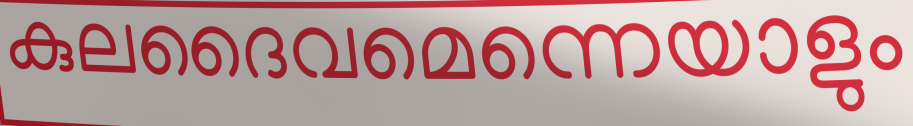
കുലദൈവമെന്നെയാളും